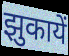
झुकायें